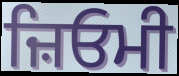
ਜ਼ਿਓਮੀ